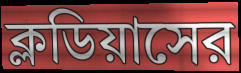
ক্লডিয়াসের